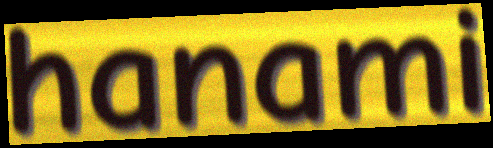
hanami